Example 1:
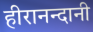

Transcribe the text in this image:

हीरानन्दानी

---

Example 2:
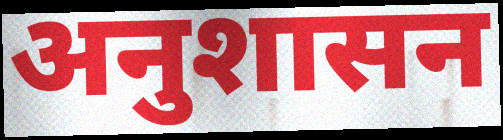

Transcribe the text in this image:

अनुशासन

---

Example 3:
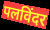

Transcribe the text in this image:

पलविंदर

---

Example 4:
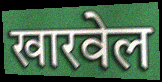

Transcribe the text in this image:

खारवेल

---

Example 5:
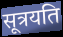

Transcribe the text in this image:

सूत्रयति